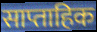
साप्ताहिक